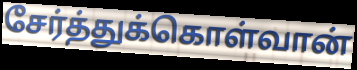
சேர்த்துக்கொள்வான்